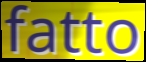
fatto